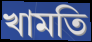
খামতি